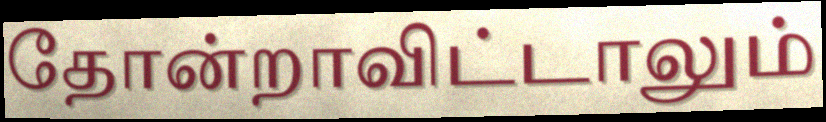
தோன்றாவிட்டாலும்